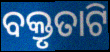
ବକ୍ତୃତାଟି